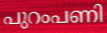
പുറംപണി